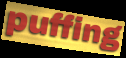
puffing